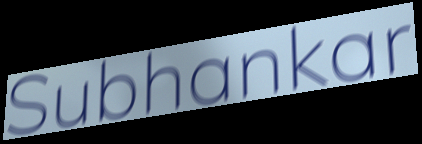
Subhankar